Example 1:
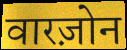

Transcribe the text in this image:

वारज़ोन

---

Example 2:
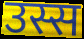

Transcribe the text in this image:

उस्स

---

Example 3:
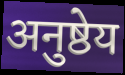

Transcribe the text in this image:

अनुष्ठेय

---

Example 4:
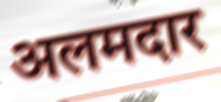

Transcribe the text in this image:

अलमदार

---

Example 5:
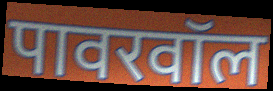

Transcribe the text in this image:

पावरवॉल